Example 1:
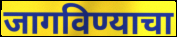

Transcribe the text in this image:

जागविण्याचा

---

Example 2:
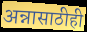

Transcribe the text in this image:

अन्नासाठीही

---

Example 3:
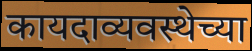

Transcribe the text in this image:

कायदाव्यवस्थेच्या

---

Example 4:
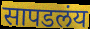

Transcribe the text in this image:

सापडलंय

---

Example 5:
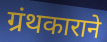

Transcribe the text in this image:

ग्रंथकाराने